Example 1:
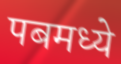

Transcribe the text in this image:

पबमध्ये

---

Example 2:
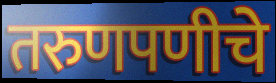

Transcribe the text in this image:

तरुणपणीचे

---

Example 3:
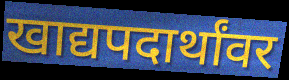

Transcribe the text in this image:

खाद्यपदार्थांवर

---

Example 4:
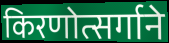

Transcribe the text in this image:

किरणोत्सर्गाने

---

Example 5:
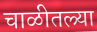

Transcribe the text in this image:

चाळीतल्या